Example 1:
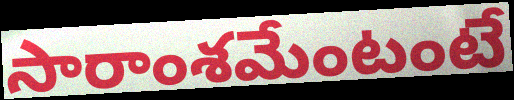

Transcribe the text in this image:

సారాంశమేంటంటే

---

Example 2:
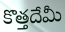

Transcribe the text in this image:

కొత్తదేమీ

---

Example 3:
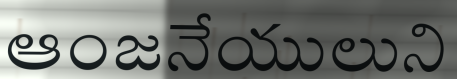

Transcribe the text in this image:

ఆంజనేయులుని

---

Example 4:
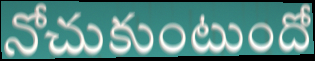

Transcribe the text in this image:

నోచుకుంటుందో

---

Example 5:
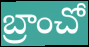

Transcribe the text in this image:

బ్రాంచో